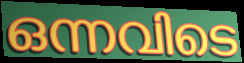
ഒന്നവിടെ